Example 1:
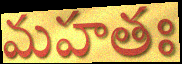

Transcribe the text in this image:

మహతః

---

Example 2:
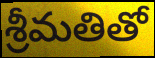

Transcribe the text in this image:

శ్రీమతితో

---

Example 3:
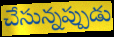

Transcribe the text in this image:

చేసున్నప్పుడు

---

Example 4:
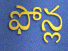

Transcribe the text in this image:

ఫోన్ల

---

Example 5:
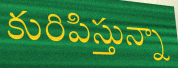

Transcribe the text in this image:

కురిపిస్తున్నా